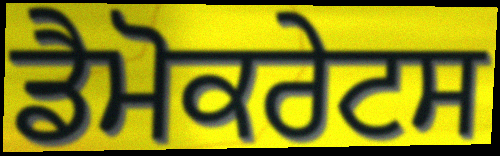
ਡੈਮੋਕਰੇਟਸ